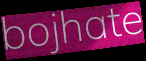
bojhate